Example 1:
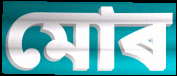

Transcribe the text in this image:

মোৰ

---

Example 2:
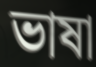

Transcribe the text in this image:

ভাষা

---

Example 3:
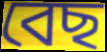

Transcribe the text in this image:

বেছ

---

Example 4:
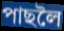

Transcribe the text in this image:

পাছলৈ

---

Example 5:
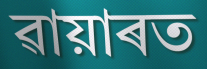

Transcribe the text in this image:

ৱায়াৰত